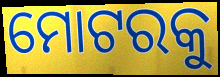
ମୋଟରକୁ